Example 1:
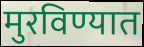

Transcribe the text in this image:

मुरविण्यात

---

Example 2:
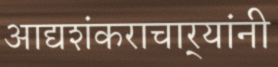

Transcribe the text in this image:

आद्यशंकराचार्यांनी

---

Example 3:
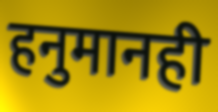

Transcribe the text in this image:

हनुमानही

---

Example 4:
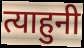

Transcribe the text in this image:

त्याहुनी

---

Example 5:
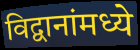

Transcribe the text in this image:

विद्वानांमध्ये